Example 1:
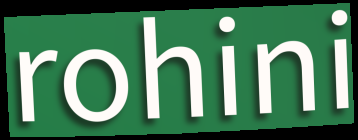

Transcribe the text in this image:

rohini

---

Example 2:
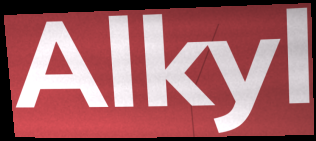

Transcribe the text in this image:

Alkyl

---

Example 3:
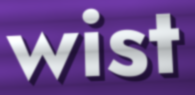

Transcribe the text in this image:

wist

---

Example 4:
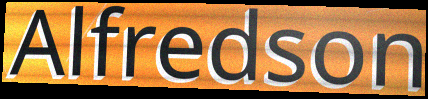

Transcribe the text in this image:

Alfredson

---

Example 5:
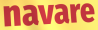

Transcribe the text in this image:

navare